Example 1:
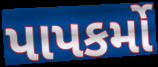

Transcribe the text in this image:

પાપકર્મો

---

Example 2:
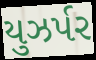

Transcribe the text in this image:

યુઝર્પર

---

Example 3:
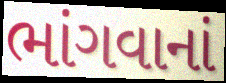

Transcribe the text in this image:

ભાંગવાનાં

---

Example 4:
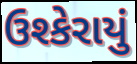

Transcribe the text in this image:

ઉશ્કેરાયું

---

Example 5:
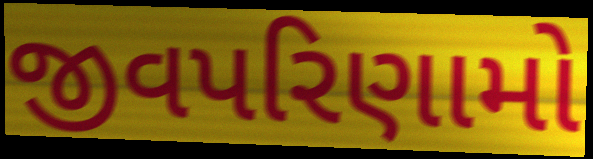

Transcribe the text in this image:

જીવપરિણામો